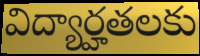
విద్యార్హతలకు